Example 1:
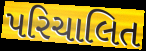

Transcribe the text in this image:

પરિચાલિત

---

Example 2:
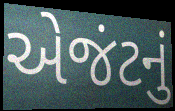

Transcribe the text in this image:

એજંટનું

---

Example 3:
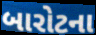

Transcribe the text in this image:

બારોટના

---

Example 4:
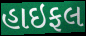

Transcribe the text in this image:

હાઇફલ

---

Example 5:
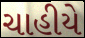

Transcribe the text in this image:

ચાહીયે